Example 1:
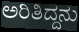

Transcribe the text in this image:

ಅರಿತಿದ್ದನು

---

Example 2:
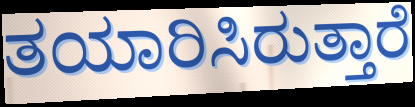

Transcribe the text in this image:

ತಯಾರಿಸಿರುತ್ತಾರೆ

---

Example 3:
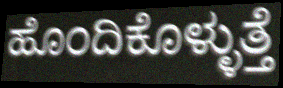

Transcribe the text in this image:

ಹೊಂದಿಕೊಳ್ಳುತ್ತೆ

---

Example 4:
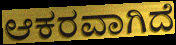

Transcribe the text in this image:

ಆಕರವಾಗಿದೆ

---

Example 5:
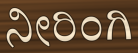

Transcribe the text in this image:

ನೀರಿಂಗಿ